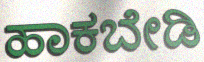
ಹಾಕಬೇಡಿ